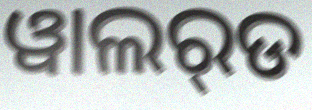
ୱାଲର୍‌ଡ